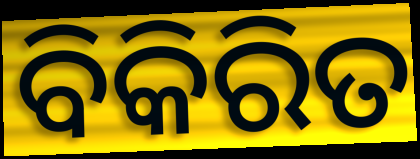
ବିକିରିତ